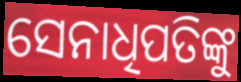
ସେନାଧିପତିଙ୍କୁ